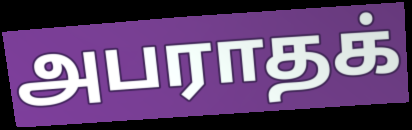
அபராதக்